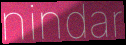
nindar